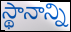
స్థానాన్ని